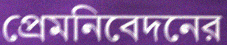
প্রেমনিবেদনের